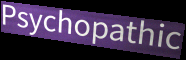
Psychopathic